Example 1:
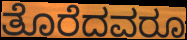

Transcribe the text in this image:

ತೊರೆದವರೂ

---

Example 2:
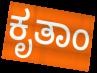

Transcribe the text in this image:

ಕೃತಾಂ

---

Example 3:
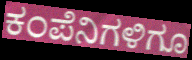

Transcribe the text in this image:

ಕಂಪೆನಿಗಳಿಗೂ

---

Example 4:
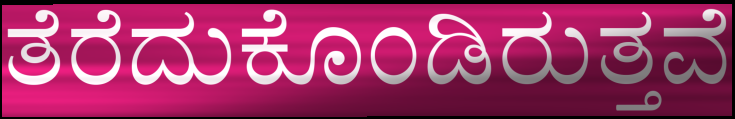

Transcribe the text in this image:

ತೆರೆದುಕೊಂಡಿರುತ್ತವೆ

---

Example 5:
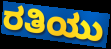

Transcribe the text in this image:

ರತಿಯು